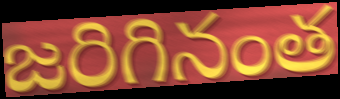
జరిగినంత